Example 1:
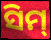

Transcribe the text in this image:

ସିମ୍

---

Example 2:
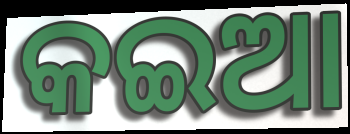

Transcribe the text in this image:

କଇଆ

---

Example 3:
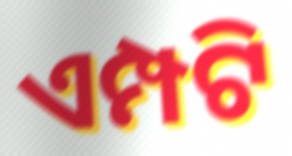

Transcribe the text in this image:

ଏମ୍ପଟି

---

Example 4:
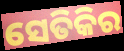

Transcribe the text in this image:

ସେତିକିର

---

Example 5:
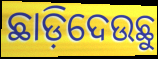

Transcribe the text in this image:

ଛାଡ଼ିଦେଉଛୁ